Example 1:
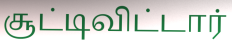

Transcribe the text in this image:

சூட்டிவிட்டார்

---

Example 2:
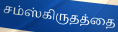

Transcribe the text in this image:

சம்ஸ்கிருதத்தை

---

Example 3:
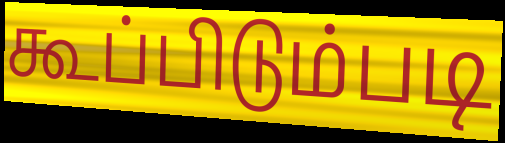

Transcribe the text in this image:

கூப்பிடும்படி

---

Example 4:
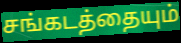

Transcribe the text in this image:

சங்கடத்தையும்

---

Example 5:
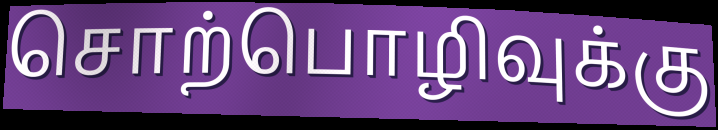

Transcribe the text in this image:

சொற்பொழிவுக்கு